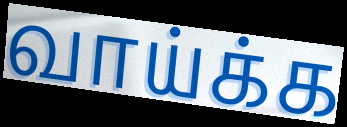
வாய்க்க